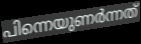
പിന്നെയുണർന്നത്